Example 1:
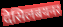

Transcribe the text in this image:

देसिलबयनर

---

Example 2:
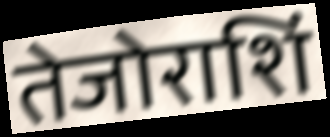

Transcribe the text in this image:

तेजोराशिं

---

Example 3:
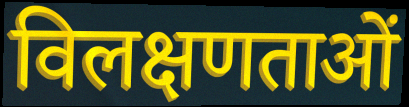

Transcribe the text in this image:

विलक्षणताओं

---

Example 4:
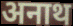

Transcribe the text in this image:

अनाथ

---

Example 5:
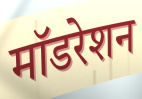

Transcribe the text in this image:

मॉडरेशन